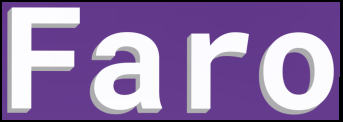
Faro